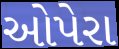
ઓપેરા